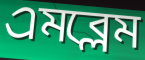
এমব্লেম